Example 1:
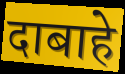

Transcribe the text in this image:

दाबाहे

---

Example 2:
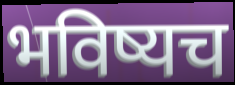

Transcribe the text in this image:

भविष्यच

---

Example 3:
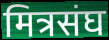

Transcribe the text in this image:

मित्रसंघ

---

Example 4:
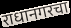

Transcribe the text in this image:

राधानगरचा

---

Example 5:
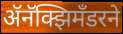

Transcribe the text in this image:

ॲनॅक्झिमँडरने